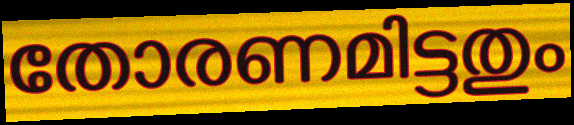
തോരണമിട്ടതും